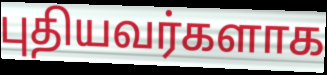
புதியவர்களாக